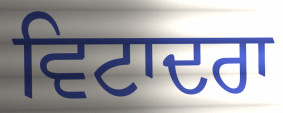
ਵਿਟਾਦਰਾ